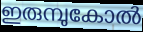
ഇരുമ്പുകോൽ